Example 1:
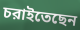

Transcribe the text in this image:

চরাইতেছেন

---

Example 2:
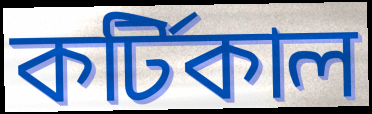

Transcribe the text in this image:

কর্টিকাল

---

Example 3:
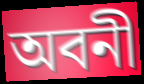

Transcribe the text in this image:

অবনী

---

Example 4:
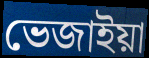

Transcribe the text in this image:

ভেজাইয়া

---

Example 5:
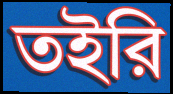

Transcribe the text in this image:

তইরি